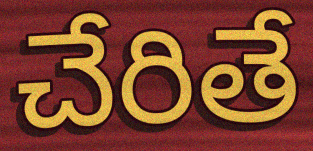
చేరితే